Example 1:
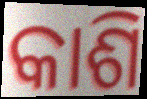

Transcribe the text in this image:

କାଶି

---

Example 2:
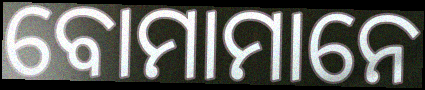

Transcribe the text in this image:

ବୋମାମାନେ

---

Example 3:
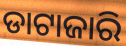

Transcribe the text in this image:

ଡାଟାଜାରି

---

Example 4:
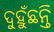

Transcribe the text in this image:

ଦୁହୁଁଛନ୍ତି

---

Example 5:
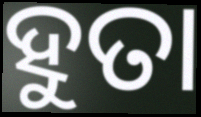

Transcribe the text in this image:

ହୁତା